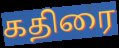
கதிரை